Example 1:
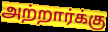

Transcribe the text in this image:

அற்றார்க்கு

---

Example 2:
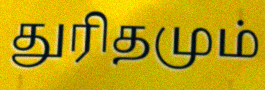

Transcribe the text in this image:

துரிதமும்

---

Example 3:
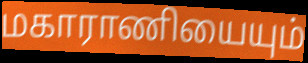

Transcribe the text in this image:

மகாராணியையும்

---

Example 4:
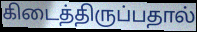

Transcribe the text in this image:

கிடைத்திருப்பதால்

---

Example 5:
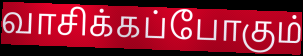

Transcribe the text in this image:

வாசிக்கப்போகும்